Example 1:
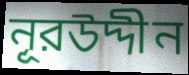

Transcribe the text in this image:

নূরউদ্দীন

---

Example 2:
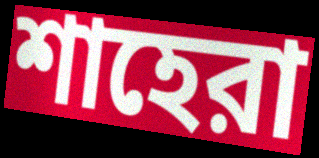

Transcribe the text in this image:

শাহেরা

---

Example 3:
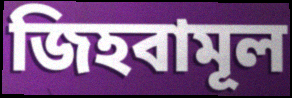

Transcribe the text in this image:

জিহবামূল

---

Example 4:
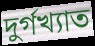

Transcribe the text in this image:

দুর্গখ্যাত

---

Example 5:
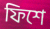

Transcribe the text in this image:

ফিশে